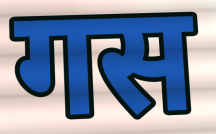
गस